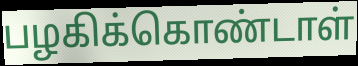
பழகிக்கொண்டாள்